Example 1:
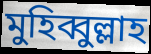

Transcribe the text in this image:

মুহিব্বুল্লাহ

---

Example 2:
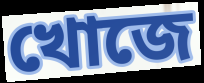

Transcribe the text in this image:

খোজে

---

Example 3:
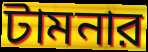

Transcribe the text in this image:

টামনার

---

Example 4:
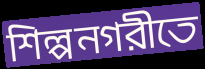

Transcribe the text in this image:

শিল্পনগরীতে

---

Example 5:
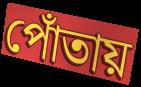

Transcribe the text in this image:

পোঁতায়